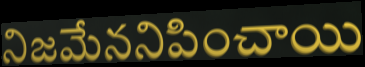
నిజమేననిపించాయి